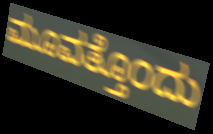
ಮೂವತ್ತೊಂದು